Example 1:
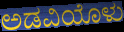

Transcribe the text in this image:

ಅಡವಿಯೊಳು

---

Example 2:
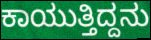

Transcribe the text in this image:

ಕಾಯುತ್ತಿದ್ದನು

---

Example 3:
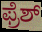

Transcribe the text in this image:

ಫ್ರೆಶ್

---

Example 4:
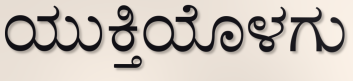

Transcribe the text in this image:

ಯುಕ್ತಿಯೊಳಗು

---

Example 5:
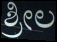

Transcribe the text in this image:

ಶ್ರೀಲ